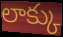
లాక్కు